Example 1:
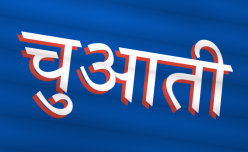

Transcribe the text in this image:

चुआती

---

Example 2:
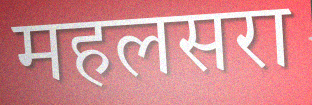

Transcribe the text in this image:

महलसरा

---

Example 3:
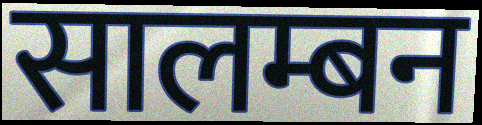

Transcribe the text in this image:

सालम्बन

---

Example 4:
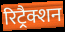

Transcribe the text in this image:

रिट्रैक्शन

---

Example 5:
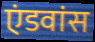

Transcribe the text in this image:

एंडवांस